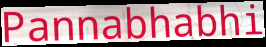
Pannabhabhi